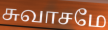
சுவாசமே